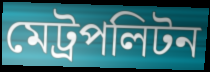
মেট্রপলিটন